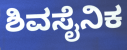
ಶಿವಸೈನಿಕ